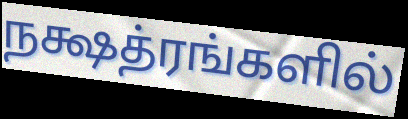
நக்ஷத்ரங்களில்